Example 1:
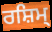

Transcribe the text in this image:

ਰਸ਼ਿਮ੍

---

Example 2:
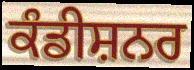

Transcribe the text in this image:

ਕੰਡੀਸ਼ਨਰ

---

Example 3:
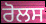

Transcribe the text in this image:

ਰੋਲਸ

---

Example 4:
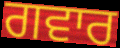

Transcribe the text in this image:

ਗਵਾਰ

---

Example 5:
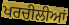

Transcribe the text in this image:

ਖਰਚੀਲੀਆਂ